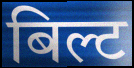
बिल्ट